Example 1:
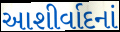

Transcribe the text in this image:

આશીર્વાદનાં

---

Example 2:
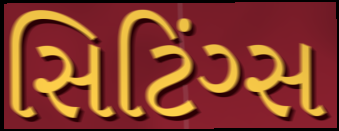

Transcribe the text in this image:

સિટિંગ્સ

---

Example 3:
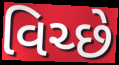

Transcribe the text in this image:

વિચ્છે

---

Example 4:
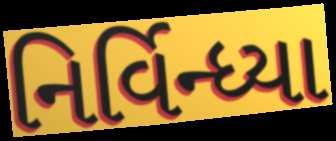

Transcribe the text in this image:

નિર્વિન્ધ્યા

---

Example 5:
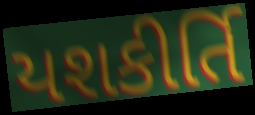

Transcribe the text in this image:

યશકીર્તિ